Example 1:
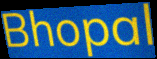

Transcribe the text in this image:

Bhopal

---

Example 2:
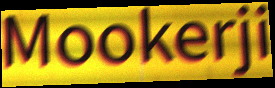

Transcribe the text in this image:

Mookerji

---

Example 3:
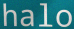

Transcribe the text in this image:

halo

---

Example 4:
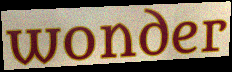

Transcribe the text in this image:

wonder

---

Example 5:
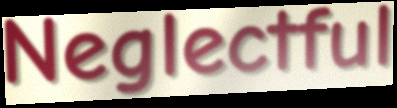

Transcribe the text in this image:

Neglectful